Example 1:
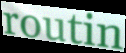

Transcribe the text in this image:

routin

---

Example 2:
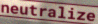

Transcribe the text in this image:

neutralize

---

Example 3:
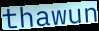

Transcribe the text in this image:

thawun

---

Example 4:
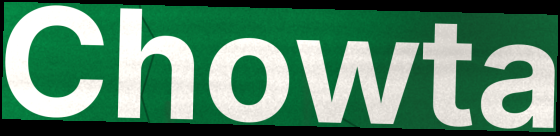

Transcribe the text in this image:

Chowta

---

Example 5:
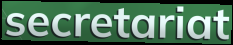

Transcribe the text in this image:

secretariat